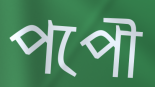
পপৌ